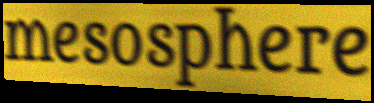
mesosphere